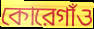
কোরেগাঁও